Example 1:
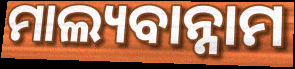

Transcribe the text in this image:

ମାଲ୍ୟବାନ୍ନାମ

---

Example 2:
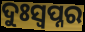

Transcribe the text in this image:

ଦୁଃସ୍ବପ୍ନର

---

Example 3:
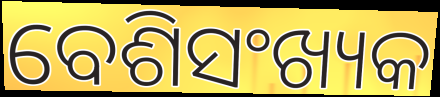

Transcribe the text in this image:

ବେଶିସଂଖ୍ୟକ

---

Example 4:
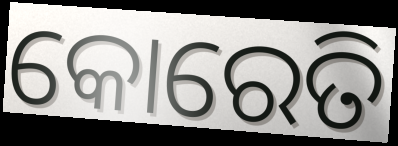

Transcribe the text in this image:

କୋରେତି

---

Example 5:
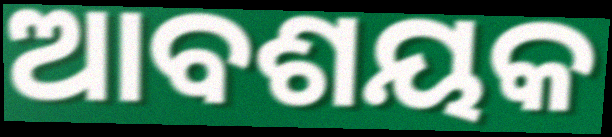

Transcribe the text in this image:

ଆବଶୟକ